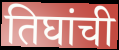
तिघांची